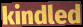
kindled